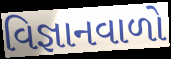
વિજ્ઞાનવાળો